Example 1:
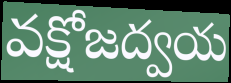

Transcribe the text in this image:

వక్షోజద్వయ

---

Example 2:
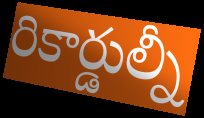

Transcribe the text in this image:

రికార్డుల్నీ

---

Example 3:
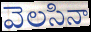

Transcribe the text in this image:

వెలసినా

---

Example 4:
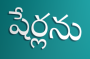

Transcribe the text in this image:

షేర్లను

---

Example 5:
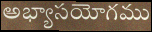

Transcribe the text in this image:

అభ్యాసయోగము